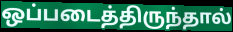
ஒப்படைத்திருந்தால்